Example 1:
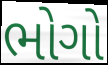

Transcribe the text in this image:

ભોગો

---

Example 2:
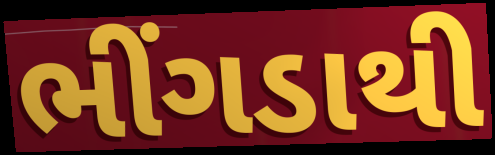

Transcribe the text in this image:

ભીંગડાથી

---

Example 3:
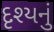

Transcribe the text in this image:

દૃશ્યનું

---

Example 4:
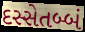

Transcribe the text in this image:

દસ્સેતબ્બં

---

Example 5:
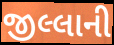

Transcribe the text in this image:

જીલ્લાની